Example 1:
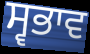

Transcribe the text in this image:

ਸ੍ਵਭਾਵ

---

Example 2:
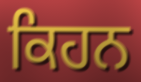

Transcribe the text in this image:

ਕਿਹਨ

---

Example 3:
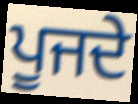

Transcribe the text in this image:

ਪੂਜਦੇ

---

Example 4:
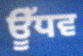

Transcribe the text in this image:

ਊੱਧਵ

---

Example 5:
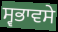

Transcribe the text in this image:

ਸ੍ਵਭਾਵਸੇ